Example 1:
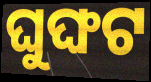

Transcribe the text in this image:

ଘୁଙ୍ଘଟ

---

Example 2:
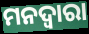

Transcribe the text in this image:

ମନଦ୍ଵାରା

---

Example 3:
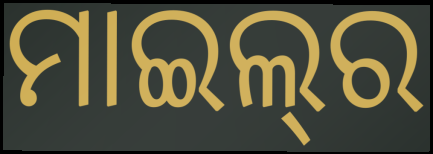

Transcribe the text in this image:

ମାଇଲ୍‍ର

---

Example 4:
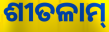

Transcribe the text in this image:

ଶୀତଳାମ୍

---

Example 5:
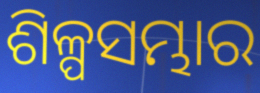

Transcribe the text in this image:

ଶିଳ୍ପସମ୍ଭାର